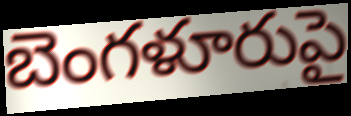
బెంగళూరుపై